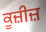
ਕੂਜ਼ੀਜ਼